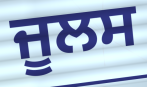
ਜੂਲਸ